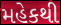
મહેકથી